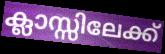
ക്ലാസ്സിലേക്ക്